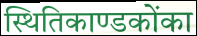
स्थितिकाण्डकोंका